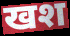
खश